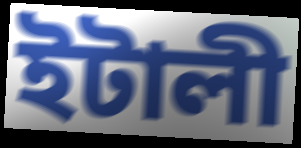
ইটালী